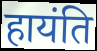
हायंति